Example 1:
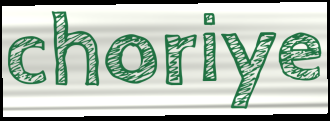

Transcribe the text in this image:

choriye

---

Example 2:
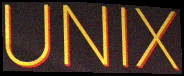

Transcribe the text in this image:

UNIX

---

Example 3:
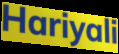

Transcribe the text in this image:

Hariyali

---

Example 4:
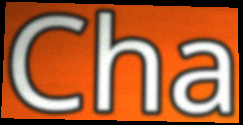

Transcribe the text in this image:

Cha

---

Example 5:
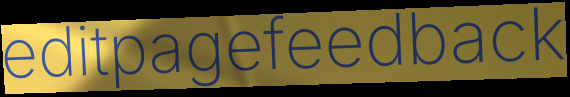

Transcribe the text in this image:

editpagefeedback